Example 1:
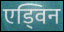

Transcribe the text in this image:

एड्विन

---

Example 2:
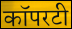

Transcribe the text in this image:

कॉपरटी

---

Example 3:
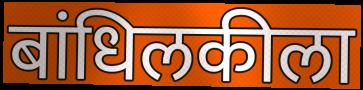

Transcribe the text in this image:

बांधिलकीला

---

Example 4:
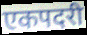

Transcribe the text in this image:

एकपदरी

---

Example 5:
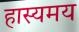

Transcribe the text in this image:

हास्यमय